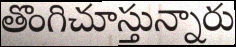
తొంగిచూస్తున్నారు